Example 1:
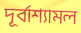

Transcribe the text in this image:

দূর্বাশ্যামল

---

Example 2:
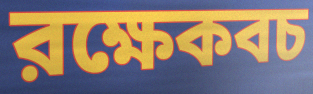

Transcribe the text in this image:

রক্ষেকবচ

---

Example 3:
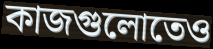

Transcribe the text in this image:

কাজগুলোতেও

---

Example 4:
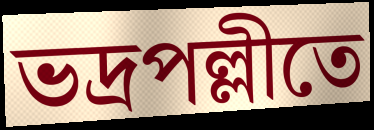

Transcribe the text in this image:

ভদ্রপল্লীতে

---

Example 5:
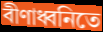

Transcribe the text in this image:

বীণাধ্বনিতে